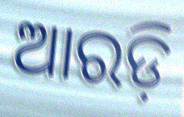
ଆରଡ଼ି